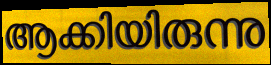
ആക്കിയിരുന്നു